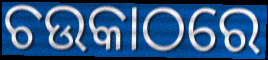
ଚଉକାଠରେ